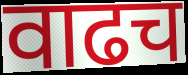
वाढच